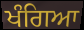
ਖੰਗਿਆ